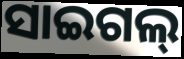
ସାଇଗଲ୍